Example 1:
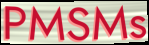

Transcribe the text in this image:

PMSMs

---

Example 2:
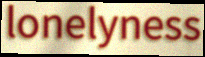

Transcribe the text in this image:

lonelyness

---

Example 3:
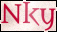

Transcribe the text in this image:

Nky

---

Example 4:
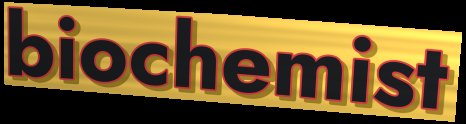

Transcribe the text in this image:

biochemist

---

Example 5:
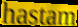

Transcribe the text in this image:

hastam